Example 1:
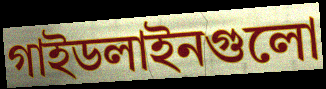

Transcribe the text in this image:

গাইডলাইনগুলো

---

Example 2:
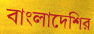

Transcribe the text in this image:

বাংলাদেশির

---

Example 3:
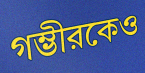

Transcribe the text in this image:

গম্ভীরকেও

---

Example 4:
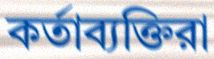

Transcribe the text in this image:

কর্তাব্যক্তিরা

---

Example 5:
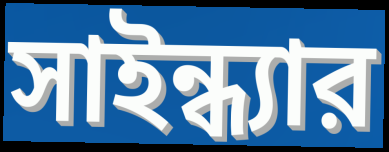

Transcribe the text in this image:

সাইন্ধ্যার